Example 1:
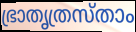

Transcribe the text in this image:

ഭ്രാതൃത്രസ്താം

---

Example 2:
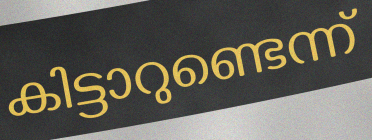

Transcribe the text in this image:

കിട്ടാറുണ്ടെന്ന്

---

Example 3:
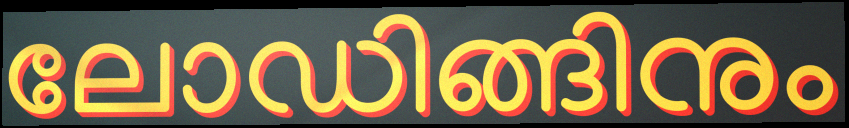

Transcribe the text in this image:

ലോഡിങ്ങിനും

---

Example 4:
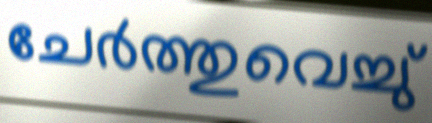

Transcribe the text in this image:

ചേർത്തുവെച്ചു്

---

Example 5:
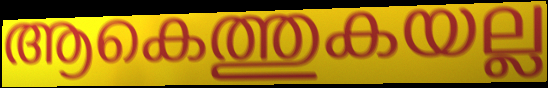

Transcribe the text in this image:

ആകെത്തുകയല്ല